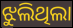
ଝୁଲିଥିଲା